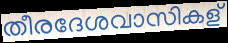
തീരദേശവാസികള്